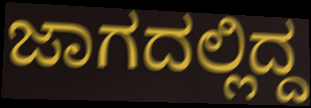
ಜಾಗದಲ್ಲಿದ್ದ